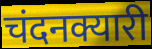
चंदनक्यारी